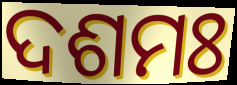
ଦଶମଃ